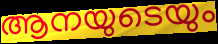
ആനയുടെയും